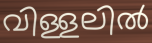
വിള്ളലിൽ